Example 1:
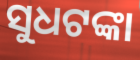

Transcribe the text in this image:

ସୁଧଟଙ୍କା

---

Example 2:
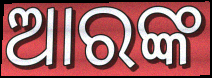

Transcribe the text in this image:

ଆରଙ୍କ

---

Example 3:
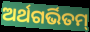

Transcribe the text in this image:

ଅର୍ଥଗର୍ଭିତମ୍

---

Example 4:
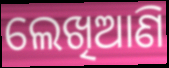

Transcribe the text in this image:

ଲେଖିଆଣି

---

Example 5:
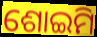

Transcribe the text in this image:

ଶୋଇମି